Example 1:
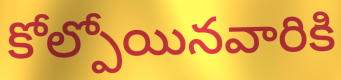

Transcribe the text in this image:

కోల్పోయినవారికి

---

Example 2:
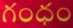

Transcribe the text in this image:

గంధం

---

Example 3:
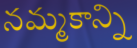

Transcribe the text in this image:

నమ్మకాన్ని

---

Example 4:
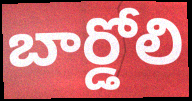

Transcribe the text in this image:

బార్డోలి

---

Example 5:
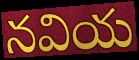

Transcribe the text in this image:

నవియ